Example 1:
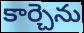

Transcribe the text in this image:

కార్చెను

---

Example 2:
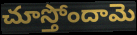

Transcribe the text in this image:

చూస్తోందామె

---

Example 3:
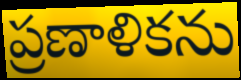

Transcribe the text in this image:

ప్రణాళికను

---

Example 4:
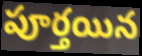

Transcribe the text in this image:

పూర్తయిన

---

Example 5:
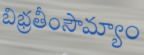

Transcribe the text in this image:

బిభ్రతీంసౌమ్యాం